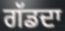
ਗੱਡਦਾ